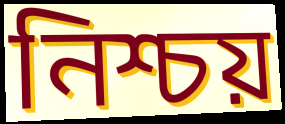
নিশ্চয়